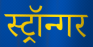
स्ट्रॉन्गर